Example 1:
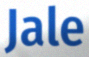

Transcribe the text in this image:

Jale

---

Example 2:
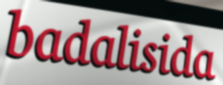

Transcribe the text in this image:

badalisida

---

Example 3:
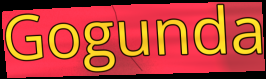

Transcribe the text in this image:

Gogunda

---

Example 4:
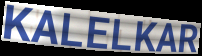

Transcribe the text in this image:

KALELKAR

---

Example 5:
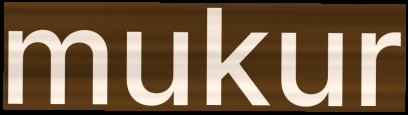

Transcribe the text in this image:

mukur